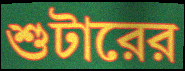
শুটারের